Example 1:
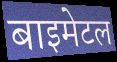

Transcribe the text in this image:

बाइमेटल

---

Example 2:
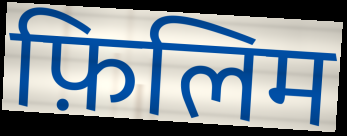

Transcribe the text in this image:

फ़िलिम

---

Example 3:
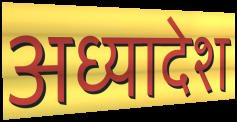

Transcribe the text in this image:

अध्यादेश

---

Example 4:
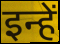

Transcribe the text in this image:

इन्हें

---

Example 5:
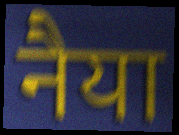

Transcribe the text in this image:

नैया